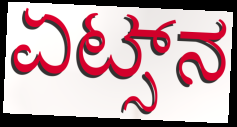
ಏಟ್ಸ್‌ನ